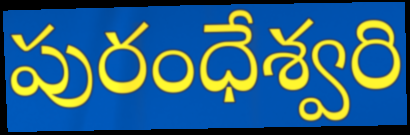
పురంధేశ్వరి